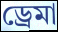
ড্রেমা